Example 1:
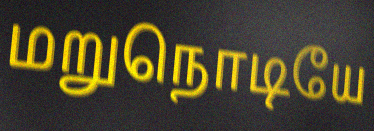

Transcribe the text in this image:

மறுநொடியே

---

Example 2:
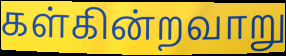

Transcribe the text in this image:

கள்கின்றவாறு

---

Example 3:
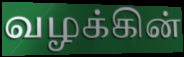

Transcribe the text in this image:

வழக்கின்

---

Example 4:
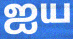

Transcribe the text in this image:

ஐய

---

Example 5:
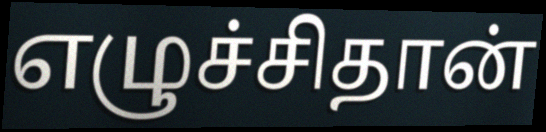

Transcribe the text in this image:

எழுச்சிதான்